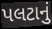
પલટાનું